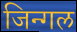
जिन्गल